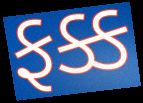
ફક્ક